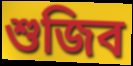
শুজিব